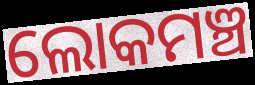
ଲୋକମଞ୍ଚ